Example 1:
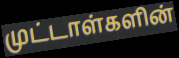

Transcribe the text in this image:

முட்டாள்களின்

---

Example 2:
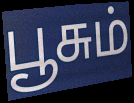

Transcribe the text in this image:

பூசும்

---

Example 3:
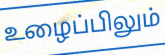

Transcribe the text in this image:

உழைப்பிலும்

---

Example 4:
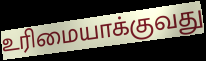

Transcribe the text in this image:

உரிமையாக்குவது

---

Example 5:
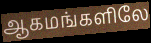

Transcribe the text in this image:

ஆகமங்களிலே